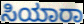
ಸಿಯಾರಾ